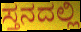
ಸ್ತನದಲ್ಲಿ